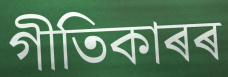
গীতিকাৰৰ